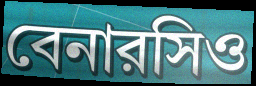
বেনারসিও